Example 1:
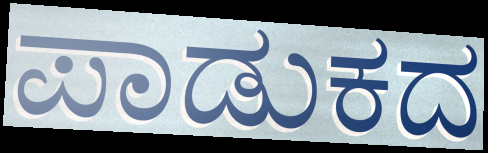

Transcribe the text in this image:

ಪಾಡುಕದ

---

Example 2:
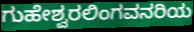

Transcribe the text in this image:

ಗುಹೇಶ್ವರಲಿಂಗವನರಿಯ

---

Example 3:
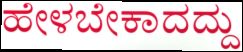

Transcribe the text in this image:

ಹೇಳಬೇಕಾದದ್ದು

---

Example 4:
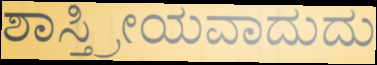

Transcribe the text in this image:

ಶಾಸ್ತ್ರೀಯವಾದುದು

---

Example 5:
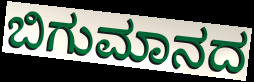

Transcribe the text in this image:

ಬಿಗುಮಾನದ